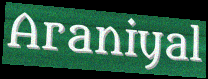
Araniyal